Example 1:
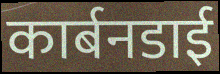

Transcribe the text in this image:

कार्बनडाई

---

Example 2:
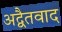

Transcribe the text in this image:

अद्वैतवाद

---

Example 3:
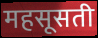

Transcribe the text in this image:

महसूसती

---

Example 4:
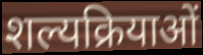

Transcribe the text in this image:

शल्यक्रियाओं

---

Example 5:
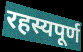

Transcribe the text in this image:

रहस्यपूर्ण